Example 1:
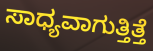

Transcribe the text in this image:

ಸಾಧ್ಯವಾಗುತ್ತಿತ್ತೆ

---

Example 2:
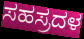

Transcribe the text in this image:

ಸಹಸ್ರದಳ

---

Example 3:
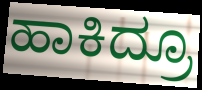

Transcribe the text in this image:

ಹಾಕಿದ್ರೂ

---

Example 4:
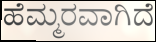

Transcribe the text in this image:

ಹೆಮ್ಮರವಾಗಿದೆ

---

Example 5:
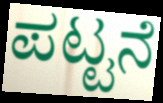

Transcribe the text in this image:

ಪಟ್ಟನೆ